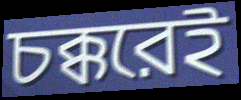
চক্করেই